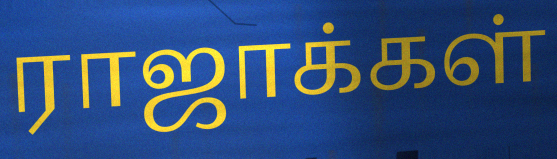
ராஜாக்கள்